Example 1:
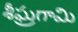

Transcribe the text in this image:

శీఘ్రగామి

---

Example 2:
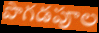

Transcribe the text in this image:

పొగడపూల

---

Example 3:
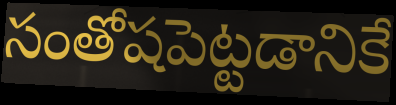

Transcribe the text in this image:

సంతోషపెట్టడానికే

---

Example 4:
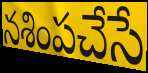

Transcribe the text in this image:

నశింపచేసే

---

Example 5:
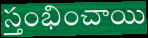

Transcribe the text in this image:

స్తంభించాయి